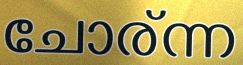
ചോര്ന്ന